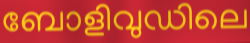
ബോളിവുഡിലെ